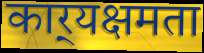
कार्यक्षमता